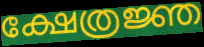
ക്ഷേത്രജ്ഞ